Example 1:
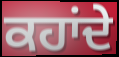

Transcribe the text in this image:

ਕਹਾਂਦੇ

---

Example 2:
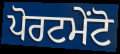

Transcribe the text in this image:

ਪੋਰਟਮੇਂਟੋ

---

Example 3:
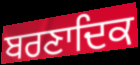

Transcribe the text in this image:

ਬਰਣਾਦਿਕ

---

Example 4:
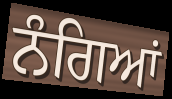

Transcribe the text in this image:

ਨੰਗਿਆਂ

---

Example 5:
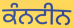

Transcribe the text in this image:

ਕੰਨਟੀਨ